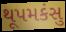
થૂપમકંસુ